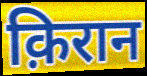
क़िरान